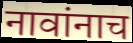
नावांनाच